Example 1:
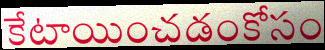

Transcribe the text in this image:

కేటాయించడంకోసం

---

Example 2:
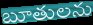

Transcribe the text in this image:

బూతులను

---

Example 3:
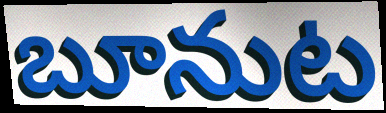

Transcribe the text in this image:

బూనుట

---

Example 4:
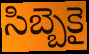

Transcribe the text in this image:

సిబ్బెకై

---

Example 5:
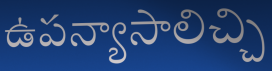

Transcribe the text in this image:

ఉపన్యాసాలిచ్చి